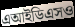
এআইডিএসও